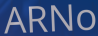
ARNo